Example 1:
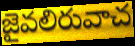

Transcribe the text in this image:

జైవలిరువాచ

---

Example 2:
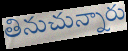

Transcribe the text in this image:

తినుచున్నారు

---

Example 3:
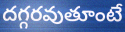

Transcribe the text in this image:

దగ్గరవుతూంటే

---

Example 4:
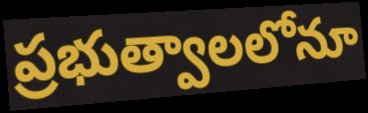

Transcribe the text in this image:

ప్రభుత్వాలలోనూ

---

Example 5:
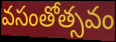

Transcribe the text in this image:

వసంతోత్సవం